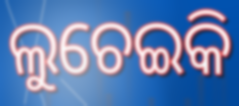
ଲୁଚେଇକି